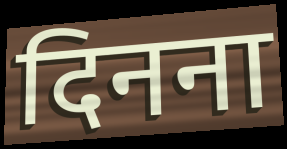
दिनना